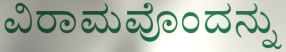
ವಿರಾಮವೊಂದನ್ನು